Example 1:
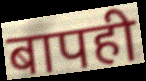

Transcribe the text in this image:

बापही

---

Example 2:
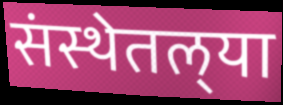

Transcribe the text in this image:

संस्थेतल्या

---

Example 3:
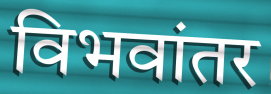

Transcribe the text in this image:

विभवांतर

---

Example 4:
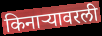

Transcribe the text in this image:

किनाऱ्यावरली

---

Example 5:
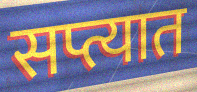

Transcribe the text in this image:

सप्त्यात